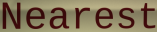
Nearest